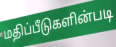
மதிப்பீடுகளின்படி